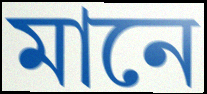
মানে